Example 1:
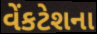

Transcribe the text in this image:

વેંકટેશના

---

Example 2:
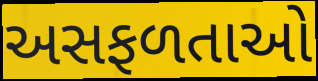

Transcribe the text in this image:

અસફળતાઓ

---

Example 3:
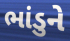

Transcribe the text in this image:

ભાંડુને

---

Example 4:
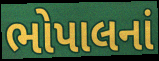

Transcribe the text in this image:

ભોપાલનાં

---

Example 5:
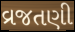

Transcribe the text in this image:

વ્રજતણી